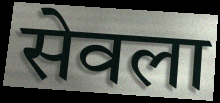
सेवला